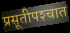
प्रसूतीपश्चात